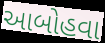
આબોહવા